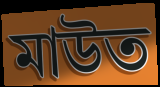
মাউত